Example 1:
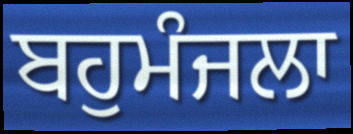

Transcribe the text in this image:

ਬਹੁਮੰਜਲਾ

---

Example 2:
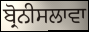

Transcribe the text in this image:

ਬ੍ਰੋਨੀਸਲਾਵਾ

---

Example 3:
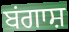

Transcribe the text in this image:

ਬਂਗਾਸ਼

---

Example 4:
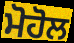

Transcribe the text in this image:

ਮੋਹੋਲ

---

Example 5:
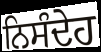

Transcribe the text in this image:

ਨਿਸੰਦੇਹ